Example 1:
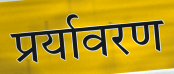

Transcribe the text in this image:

प्रर्यावरण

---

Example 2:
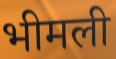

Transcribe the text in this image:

भीमली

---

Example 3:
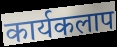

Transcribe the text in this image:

कार्यकलाप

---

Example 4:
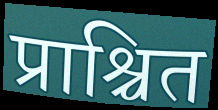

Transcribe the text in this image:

प्राश्चित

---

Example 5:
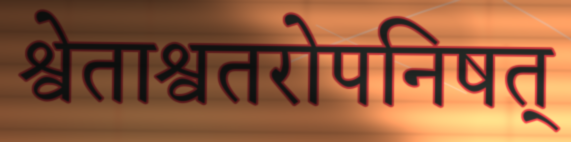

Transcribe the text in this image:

श्वेताश्वतरोपनिषत्